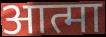
आत्‍मा